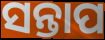
ସନ୍ତାପ